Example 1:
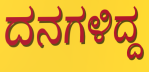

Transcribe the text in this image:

ದನಗಳಿದ್ದ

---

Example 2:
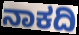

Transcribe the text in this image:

ನಾಕದಿ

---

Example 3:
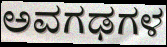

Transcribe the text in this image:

ಅವಗಢಗಳ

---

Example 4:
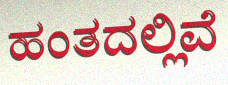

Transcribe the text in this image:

ಹಂತದಲ್ಲಿವೆ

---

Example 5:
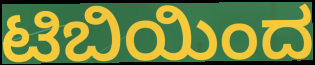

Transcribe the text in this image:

ಟಿಬಿಯಿಂದ